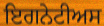
ਇਗਨੇਟੀਅਸ